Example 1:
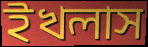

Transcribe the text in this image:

ইখলাস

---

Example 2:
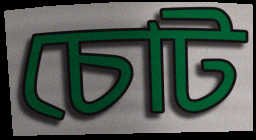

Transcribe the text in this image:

চোট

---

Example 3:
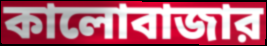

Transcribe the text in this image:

কালোবাজার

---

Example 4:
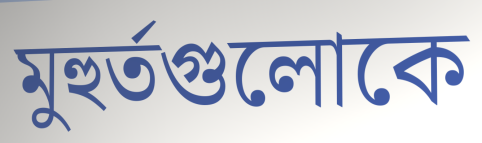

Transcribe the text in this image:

মুহুর্তগুলোকে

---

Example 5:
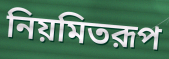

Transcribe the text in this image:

নিয়মিতরূপ